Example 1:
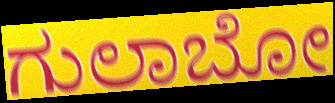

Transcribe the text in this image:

ಗುಲಾಬೋ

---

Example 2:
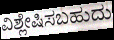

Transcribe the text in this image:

ವಿಶ್ಲೇಷಿಸಬಹುದು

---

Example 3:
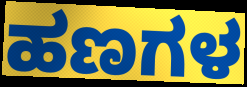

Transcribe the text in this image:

ಹಣಗಳ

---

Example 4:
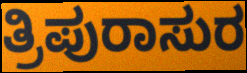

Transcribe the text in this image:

ತ್ರಿಪುರಾಸುರ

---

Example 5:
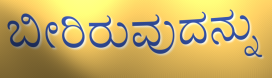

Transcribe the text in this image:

ಬೀರಿರುವುದನ್ನು